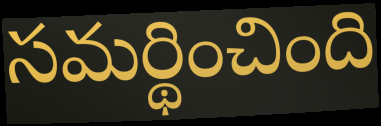
సమర్థించింది